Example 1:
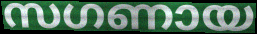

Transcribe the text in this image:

സഗണായ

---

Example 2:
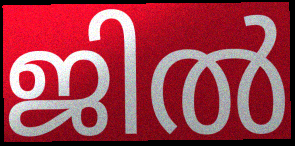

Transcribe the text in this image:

ജിൽ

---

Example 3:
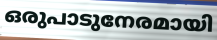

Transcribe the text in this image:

ഒരുപാടുനേരമായി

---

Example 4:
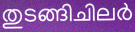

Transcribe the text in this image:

തുടങ്ങിചിലർ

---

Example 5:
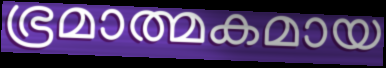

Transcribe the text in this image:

ഭ്രമാത്മകമായ